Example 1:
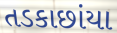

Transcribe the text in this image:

તડકાછાંયા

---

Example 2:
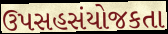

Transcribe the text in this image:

ઉપસહસંયોજકતા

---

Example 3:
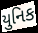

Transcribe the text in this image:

યુનિક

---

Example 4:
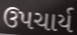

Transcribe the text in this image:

ઉપચાર્ય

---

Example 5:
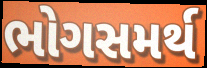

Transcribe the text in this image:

ભોગસમર્થ